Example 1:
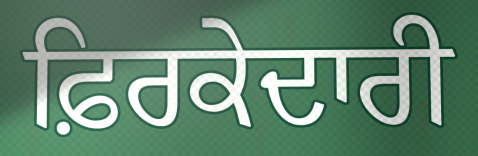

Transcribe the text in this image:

ਫ਼ਿਰਕੇਦਾਰੀ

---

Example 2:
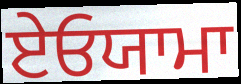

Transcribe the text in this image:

ਏਓਯਾਮਾ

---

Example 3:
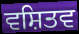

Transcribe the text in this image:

ਵਸ਼ਿਤਵ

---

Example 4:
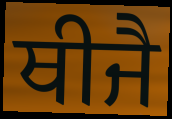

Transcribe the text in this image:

ਥੀਜੈ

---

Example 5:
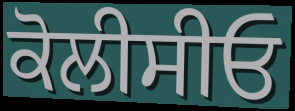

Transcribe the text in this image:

ਕੋਲੀਸੀਓ